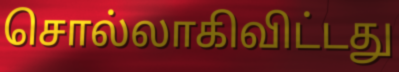
சொல்லாகிவிட்டது